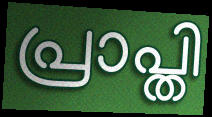
പ്രാപ്തി